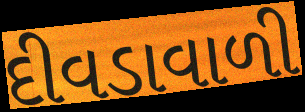
દીવડાવાળી